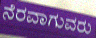
ನೆರವಾಗುವರು